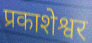
प्रकाशेश्वर